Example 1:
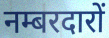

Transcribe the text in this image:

नम्बरदारों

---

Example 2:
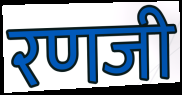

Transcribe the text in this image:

रणजी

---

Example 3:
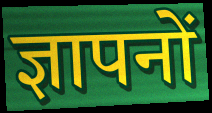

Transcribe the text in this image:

ज्ञापनों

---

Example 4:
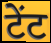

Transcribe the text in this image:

टेंट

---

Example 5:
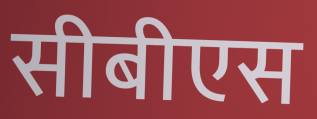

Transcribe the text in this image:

सीबीएस